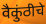
वैकुंठीचे